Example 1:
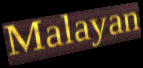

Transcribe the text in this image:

Malayan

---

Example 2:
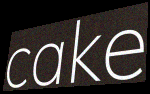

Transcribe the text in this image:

cake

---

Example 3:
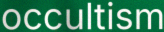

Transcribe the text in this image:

occultism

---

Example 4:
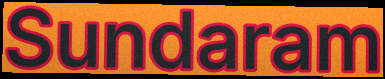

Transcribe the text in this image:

Sundaram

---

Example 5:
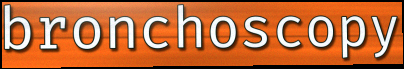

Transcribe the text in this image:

bronchoscopy